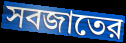
সবজাতের